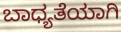
ಬಾಧ್ಯತೆಯಾಗಿ